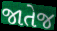
જાતેજ